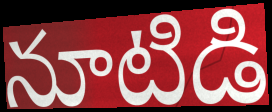
నూటిడి